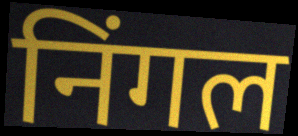
निंगल